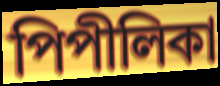
পিপীলিকা